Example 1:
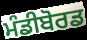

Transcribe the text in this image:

ਮੰਡੀਬੋਰਡ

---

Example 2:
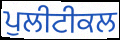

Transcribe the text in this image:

ਪੁਲੀਟੀਕਲ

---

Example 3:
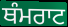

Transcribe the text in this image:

ਥੰਮਰਾਟ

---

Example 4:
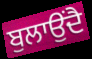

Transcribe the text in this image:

ਬੁਲਾਉਂਦੈ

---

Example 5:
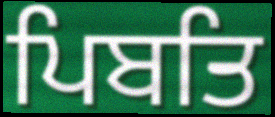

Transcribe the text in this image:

ਪਿਬਤਿ